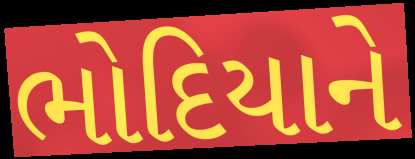
ભોદિયાને